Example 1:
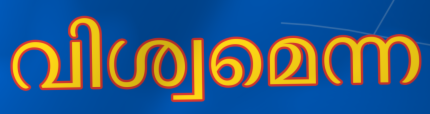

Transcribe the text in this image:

വിശ്വമെന്ന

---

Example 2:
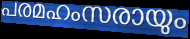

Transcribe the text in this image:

പരമഹംസരായും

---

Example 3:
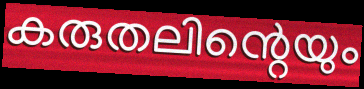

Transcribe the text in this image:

കരുതലിന്റെയും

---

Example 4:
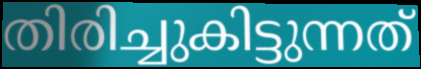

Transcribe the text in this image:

തിരിച്ചുകിട്ടുന്നത്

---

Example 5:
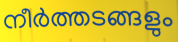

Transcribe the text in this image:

നീർത്തടങ്ങളും